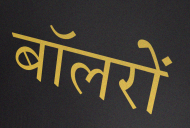
बॉलरों